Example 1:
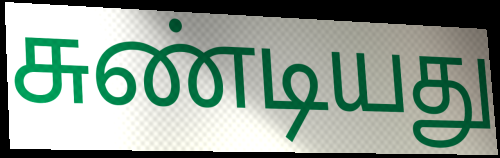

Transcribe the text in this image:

சுண்டியது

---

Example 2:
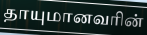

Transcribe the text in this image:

தாயுமானவரின்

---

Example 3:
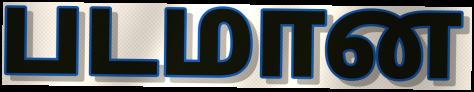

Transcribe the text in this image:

படமான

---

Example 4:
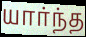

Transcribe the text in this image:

யார்ந்த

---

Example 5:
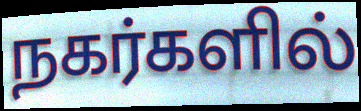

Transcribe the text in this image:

நகர்களில்